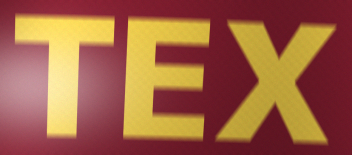
TEX